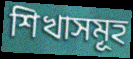
শিখাসমূহ